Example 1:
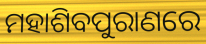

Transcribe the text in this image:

ମହାଶିବପୁରାଣରେ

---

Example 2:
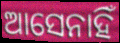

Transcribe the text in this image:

ଆସେନାହିଁ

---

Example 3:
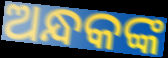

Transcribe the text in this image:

ଅନ୍ଧକଙ୍କ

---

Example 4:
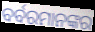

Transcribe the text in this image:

ବର୍ବରମାନଙ୍କର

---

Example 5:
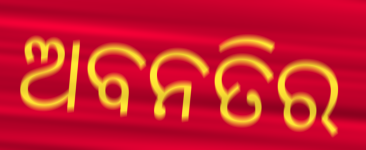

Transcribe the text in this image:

ଅବନତିର